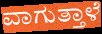
ವಾಗುತ್ತಾಳೆ